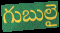
గుబులై